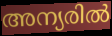
അന്യരിൽ